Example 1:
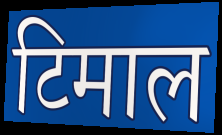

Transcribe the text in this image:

टिमाल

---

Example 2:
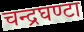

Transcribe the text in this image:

चन्द्रघण्टा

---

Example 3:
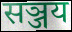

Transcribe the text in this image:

सञ्जय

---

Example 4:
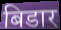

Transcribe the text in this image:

बिडार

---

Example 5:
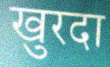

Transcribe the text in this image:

खुरदा